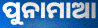
ପୁନାମାଆ